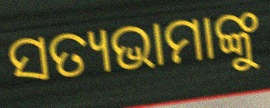
ସତ୍ୟଭାମାଙ୍କୁ